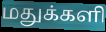
மதுக்களி